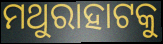
ମଥୁରାହାଟକୁ